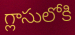
గ్లాసులోకి